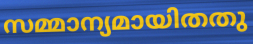
സമ്മാന്യമായിതതു